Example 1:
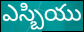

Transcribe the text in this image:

ఎస్బియు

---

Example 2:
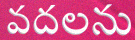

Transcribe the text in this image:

వదలను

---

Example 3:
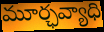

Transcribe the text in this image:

మూర్ఛవ్యాధి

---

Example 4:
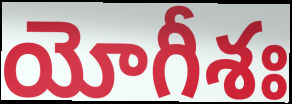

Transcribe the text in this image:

యోగీశః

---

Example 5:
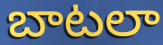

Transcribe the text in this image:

బాటలా